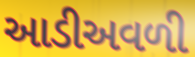
આડીઅવળી